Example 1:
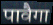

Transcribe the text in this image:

पावैगा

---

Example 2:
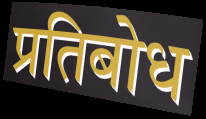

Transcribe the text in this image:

प्रतिबोध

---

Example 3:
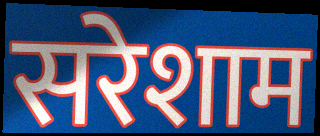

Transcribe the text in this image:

सरेशाम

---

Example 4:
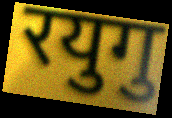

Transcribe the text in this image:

रयुगु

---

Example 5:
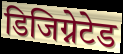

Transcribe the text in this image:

डिजिग्नेटेड